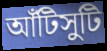
আঁটিসুটি